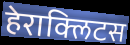
हेराक्लिटस